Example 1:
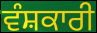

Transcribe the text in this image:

ਵੰਸ਼ਕਾਰੀ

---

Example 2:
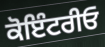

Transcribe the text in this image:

ਕੋਇੰਟਰੀਓ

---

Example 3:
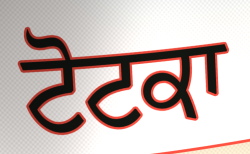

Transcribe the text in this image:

ਟੋਟਕਾ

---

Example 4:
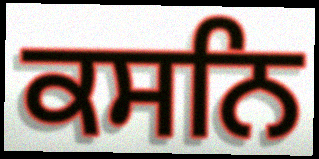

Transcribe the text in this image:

ਕਸਨਿ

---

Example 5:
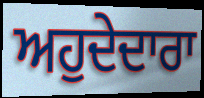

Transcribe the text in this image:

ਅਹੁਦੇਦਾਰਾ